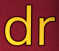
dr